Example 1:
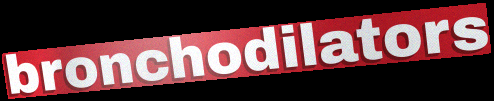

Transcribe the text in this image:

bronchodilators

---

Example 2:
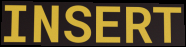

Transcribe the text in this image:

INSERT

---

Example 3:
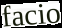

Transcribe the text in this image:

facio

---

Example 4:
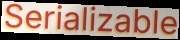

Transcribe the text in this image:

Serializable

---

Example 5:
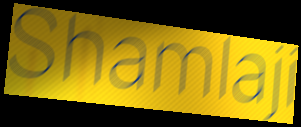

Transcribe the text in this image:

Shamlaji